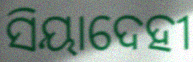
ସିୟାଦେହୀ